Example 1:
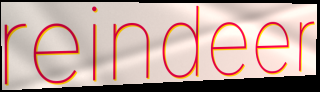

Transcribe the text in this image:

reindeer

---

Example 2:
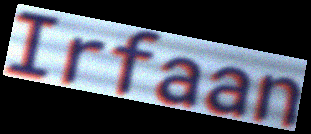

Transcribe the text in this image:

Irfaan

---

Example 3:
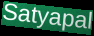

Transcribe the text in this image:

Satyapal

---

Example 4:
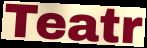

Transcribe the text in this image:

Teatr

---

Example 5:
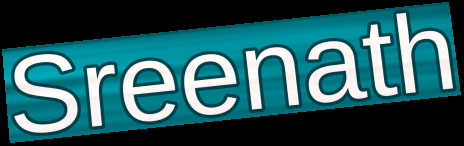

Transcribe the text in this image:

Sreenath